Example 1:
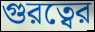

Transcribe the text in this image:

গুরত্বের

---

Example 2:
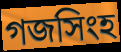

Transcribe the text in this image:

গজসিংহ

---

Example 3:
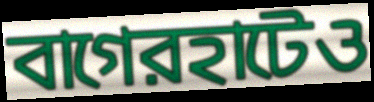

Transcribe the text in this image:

বাগেরহাটেও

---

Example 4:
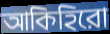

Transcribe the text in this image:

আকিহিরো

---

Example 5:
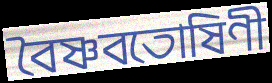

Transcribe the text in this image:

বৈষ্ণবতোষিণী